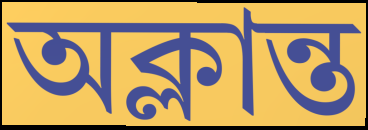
অক্লান্ত